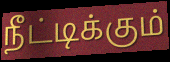
நீட்டிக்கும்